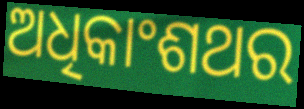
ଅଧିକାଂଶଥର